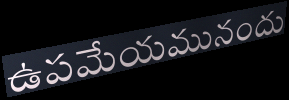
ఉపమేయమునందు